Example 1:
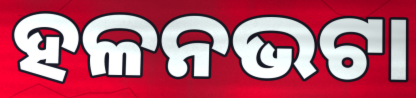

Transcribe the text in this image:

ହଳନଭଟା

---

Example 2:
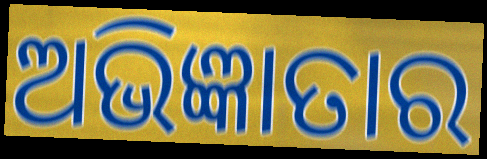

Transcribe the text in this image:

ଅଭିଜ୍ଞାତାର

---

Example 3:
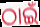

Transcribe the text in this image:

ଠାଇଁ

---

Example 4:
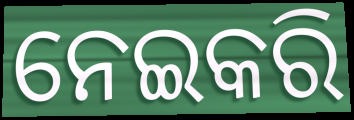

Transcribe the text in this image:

ନେଇକରି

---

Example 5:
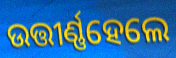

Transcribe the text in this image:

ଉତ୍ତୀର୍ଣ୍ଣହେଲେ